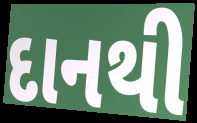
દાનથી